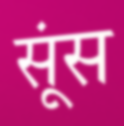
सूंस